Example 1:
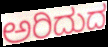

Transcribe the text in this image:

ಅರಿದುದ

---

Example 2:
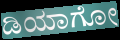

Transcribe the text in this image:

ಡಿಯಾಗೋ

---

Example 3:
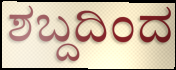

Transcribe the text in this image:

ಶಬ್ದದಿಂದ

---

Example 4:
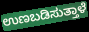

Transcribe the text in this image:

ಉಣಬಡಿಸುತ್ತಾಳೆ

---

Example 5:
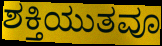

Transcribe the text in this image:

ಶಕ್ತಿಯುತವೂ